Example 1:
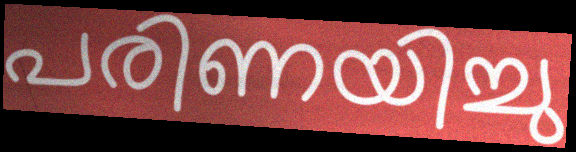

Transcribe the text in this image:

പരിണയിച്ചു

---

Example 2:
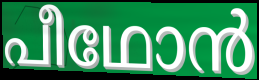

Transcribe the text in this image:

പീഥോൻ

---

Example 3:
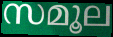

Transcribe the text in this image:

സമൂല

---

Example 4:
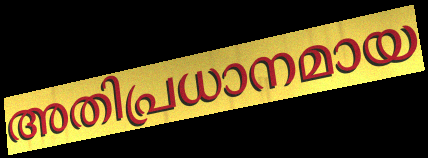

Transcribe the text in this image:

അതിപ്രധാനമായ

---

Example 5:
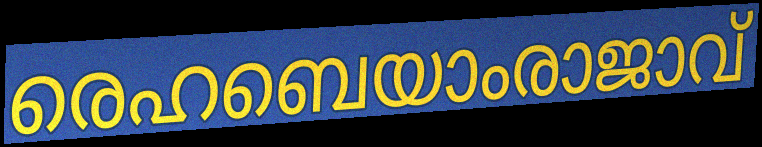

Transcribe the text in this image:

രെഹബെയാംരാജാവ്